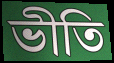
ভীতি